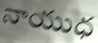
నాయుధ